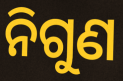
ନିଗୁଣ